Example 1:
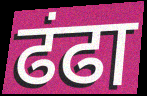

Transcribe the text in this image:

ढंढा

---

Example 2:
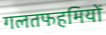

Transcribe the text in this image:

गलतफहमियों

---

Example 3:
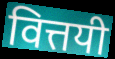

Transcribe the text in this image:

वित्तयी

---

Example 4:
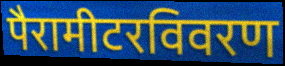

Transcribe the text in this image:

पैरामीटरविवरण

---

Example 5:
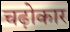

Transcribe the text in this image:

चढ़ोकार